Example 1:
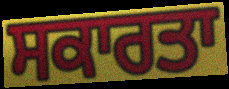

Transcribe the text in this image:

ਸਕਾਰਤਾ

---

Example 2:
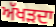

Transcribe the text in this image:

ਅੱਖੜਦਾ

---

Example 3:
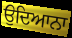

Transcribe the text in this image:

ਉਦਿਆਨਾ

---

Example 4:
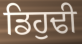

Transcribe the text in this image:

ਡਿਹੁਢੀ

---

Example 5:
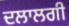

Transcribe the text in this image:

ਦਲਾਲਗੀ